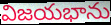
విజయభాను